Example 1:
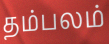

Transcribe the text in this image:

தம்பலம்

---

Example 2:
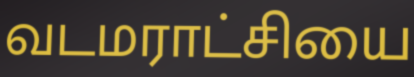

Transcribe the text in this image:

வடமராட்சியை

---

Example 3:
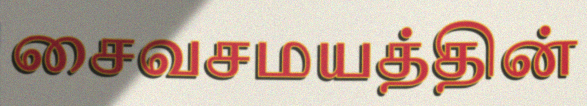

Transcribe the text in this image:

சைவசமயத்தின்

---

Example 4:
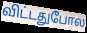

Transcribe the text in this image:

விட்டதுபோல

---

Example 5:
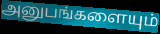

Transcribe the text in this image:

அனுபங்களையும்